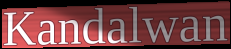
Kandalwan